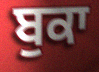
ਬੁਕਾ